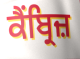
ਕੈਂਬ੍ਰਿਜ਼